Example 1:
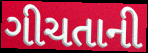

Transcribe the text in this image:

ગીચતાની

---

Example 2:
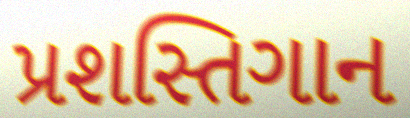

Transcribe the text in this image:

પ્રશસ્તિગાન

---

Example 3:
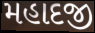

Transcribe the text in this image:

મહાદજી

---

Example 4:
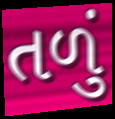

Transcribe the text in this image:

તળું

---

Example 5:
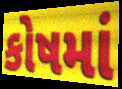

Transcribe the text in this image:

કોષમાં